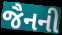
જૈનની